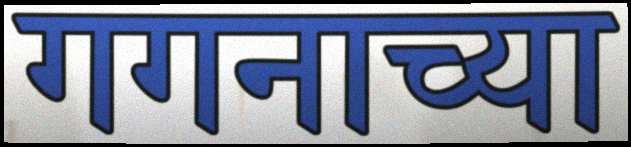
गगनाच्या